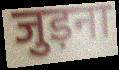
जुड़ना